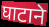
घाटाने